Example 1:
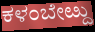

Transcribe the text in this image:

ಕಳಂಬೇೞ್ದು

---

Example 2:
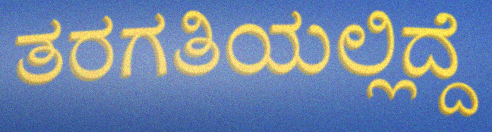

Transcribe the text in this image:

ತರಗತಿಯಲ್ಲಿದ್ದೆ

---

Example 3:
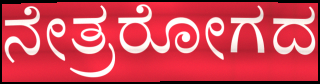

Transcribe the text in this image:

ನೇತ್ರರೋಗದ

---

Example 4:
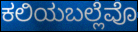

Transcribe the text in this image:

ಕಲಿಯಬಲ್ಲೆವೊ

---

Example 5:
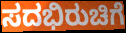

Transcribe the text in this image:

ಸದಭಿರುಚಿಗೆ